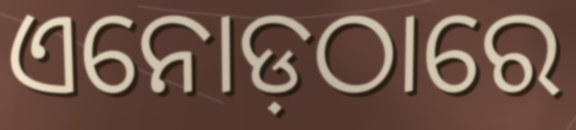
ଏନୋଡ଼ଠାରେ